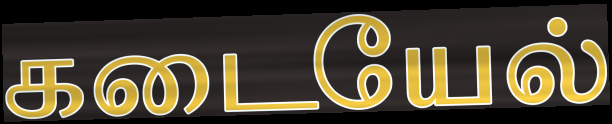
கடையேல்